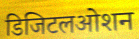
डिजिटलओशन